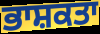
ਭਾਸ਼ਕਤਾ